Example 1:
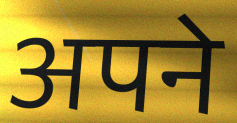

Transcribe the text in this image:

अपने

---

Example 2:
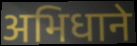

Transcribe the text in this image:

अभिधाने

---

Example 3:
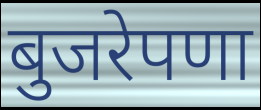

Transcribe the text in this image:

बुजरेपणा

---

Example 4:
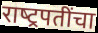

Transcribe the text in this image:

राष्ट्रपतींचा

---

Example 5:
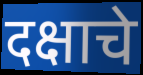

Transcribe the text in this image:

दक्षाचे